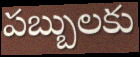
పబ్బులకు